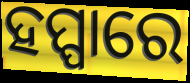
ହପ୍ପାରେ